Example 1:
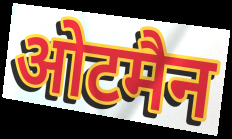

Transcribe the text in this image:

ओटमैन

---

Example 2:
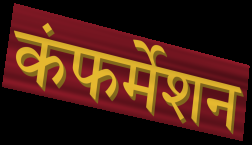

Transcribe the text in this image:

कंफर्मेशन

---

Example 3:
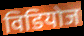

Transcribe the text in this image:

विडियोज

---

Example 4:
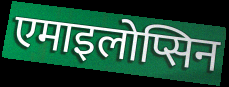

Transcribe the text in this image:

एमाइलोप्सिन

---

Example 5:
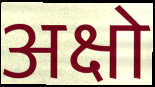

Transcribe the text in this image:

अक्षो